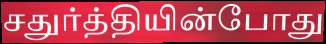
சதுர்த்தியின்போது